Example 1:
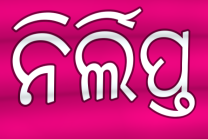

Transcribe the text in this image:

ନିର୍ଲିପ୍ତ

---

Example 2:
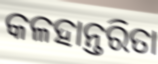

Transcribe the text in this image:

କଳହାନ୍ତରିତା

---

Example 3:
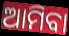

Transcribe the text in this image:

ଆମିବା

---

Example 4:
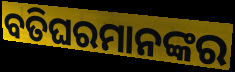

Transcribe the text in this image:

ବତିଘରମାନଙ୍କର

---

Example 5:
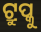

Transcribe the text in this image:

ଟ୍ରୁପ୍କୁ